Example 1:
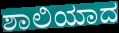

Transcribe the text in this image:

ಶಾಲಿಯಾದ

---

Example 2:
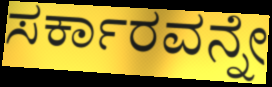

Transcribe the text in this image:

ಸರ್ಕಾರವನ್ನೇ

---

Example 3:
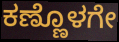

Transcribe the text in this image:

ಕಣ್ಣೊಳಗೇ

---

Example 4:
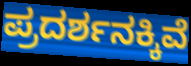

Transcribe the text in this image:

ಪ್ರದರ್ಶನಕ್ಕಿವೆ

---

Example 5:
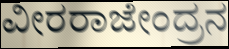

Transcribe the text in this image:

ವೀರರಾಜೇಂದ್ರನ